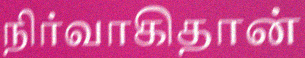
நிர்வாகிதான்